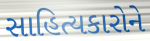
સાહિત્યકારોને